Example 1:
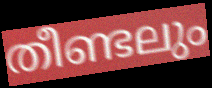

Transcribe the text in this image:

തീണ്ടലും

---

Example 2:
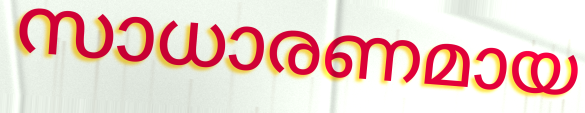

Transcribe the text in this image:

സാധാരണമായ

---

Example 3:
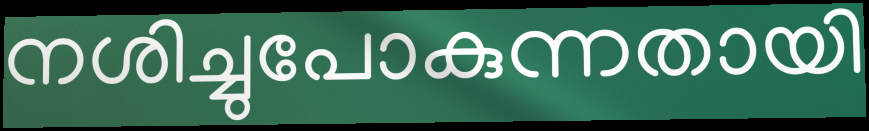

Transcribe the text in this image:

നശിച്ചുപോകുന്നതായി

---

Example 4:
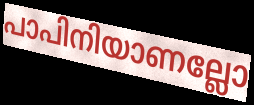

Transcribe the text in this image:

പാപിനിയാണല്ലോ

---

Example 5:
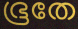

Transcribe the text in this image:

ഭൂതേ